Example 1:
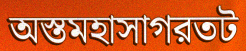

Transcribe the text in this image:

অস্তমহাসাগরতট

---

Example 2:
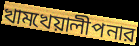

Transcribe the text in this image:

খামখেয়ালীপনার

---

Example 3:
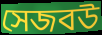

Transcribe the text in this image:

সেজবউ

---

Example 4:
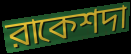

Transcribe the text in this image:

রাকেশদা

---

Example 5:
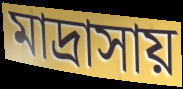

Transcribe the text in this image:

মাদ্রাসায়